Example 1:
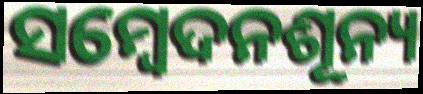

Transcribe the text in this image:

ସମ୍ବେଦନଶୂନ୍ୟ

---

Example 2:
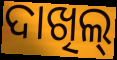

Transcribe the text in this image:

ଦାଖିଲ୍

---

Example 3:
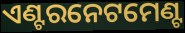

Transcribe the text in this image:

ଏଣ୍ଟରନେଟମେଣ୍ଟ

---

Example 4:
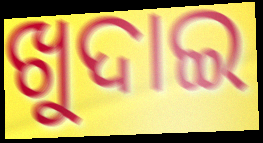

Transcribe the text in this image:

ଖୁଦାଇ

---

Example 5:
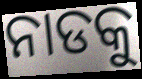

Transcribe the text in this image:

ନାଡକୁ